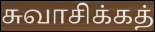
சுவாசிக்கத்